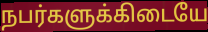
நபர்களுக்கிடையே